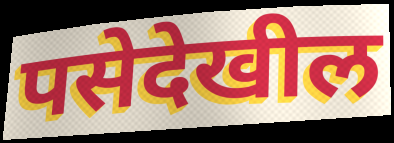
पसेदेखील